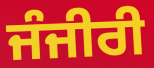
ਜੰਜੀਰੀ